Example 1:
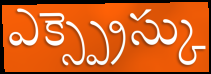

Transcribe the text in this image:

ఎక్స్ప్రెస్కు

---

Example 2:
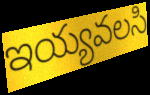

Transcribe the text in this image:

ఇయ్యవలసి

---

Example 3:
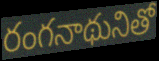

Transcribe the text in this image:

రంగనాథునితో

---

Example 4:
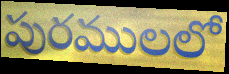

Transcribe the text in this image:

పురములలో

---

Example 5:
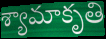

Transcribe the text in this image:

శ్యామాకృతి